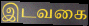
இடவகை